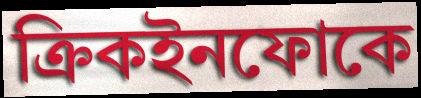
ক্রিকইনফোকে